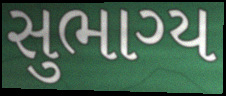
સુભાગ્ય